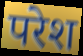
परेश